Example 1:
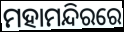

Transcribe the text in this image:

ମହାମନ୍ଦିରରେ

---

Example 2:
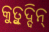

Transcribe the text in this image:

କୁତ୍ବୁଦ୍ଦିନ୍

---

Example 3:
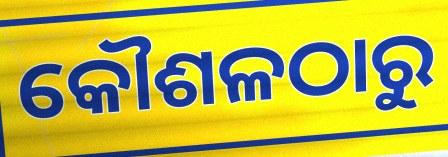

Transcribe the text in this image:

କୌଶଳଠାରୁ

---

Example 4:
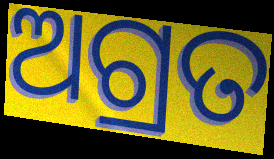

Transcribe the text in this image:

ଅଗ୍ରତ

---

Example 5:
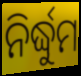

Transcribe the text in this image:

ନିର୍ଦ୍ଧୁମ